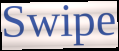
Swipe